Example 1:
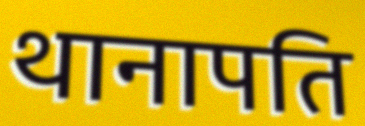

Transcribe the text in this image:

थानापति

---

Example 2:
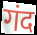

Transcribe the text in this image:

गंद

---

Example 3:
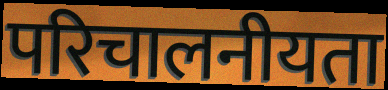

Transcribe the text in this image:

परिचालनीयता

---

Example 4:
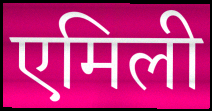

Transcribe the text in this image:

एमिली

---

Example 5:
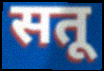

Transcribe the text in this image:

सतू